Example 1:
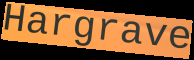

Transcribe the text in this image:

Hargrave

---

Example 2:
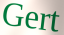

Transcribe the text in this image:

Gert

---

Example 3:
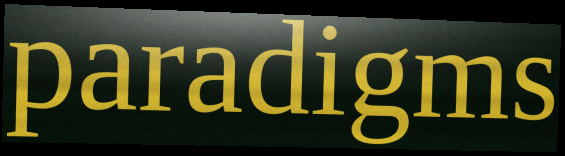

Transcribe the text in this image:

paradigms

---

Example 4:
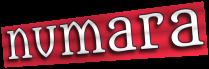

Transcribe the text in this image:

numara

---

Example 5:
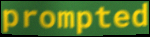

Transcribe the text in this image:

prompted